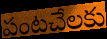
పంటచేలకు